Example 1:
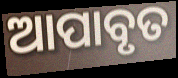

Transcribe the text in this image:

ଆପାବୃତ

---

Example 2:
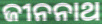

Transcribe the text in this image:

ଜୀନନାଥ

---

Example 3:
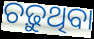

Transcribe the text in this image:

ଚଢ଼ୁଥିବା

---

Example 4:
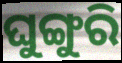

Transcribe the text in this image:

ଘୁଙ୍ଗୁରି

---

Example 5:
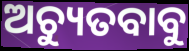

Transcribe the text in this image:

ଅଚ୍ୟୁତବାବୁ